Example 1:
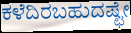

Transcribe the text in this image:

ಕಳೆದಿರಬಹುದಷ್ಟೇ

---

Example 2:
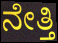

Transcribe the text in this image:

ನೇತ್ತಿ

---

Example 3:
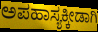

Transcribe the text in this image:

ಅಪಹಾಸ್ಯಕ್ಕೀಡಾಗಿ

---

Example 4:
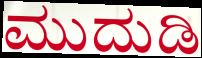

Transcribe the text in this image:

ಮುದುಡಿ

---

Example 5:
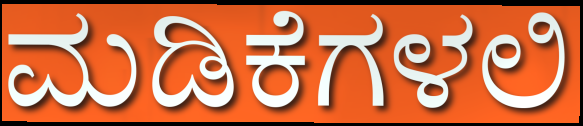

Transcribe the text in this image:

ಮಡಿಕೆಗಳಲಿ